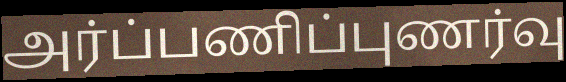
அர்ப்பணிப்புணர்வு